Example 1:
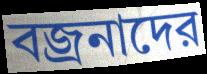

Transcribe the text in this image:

বজ্রনাদের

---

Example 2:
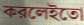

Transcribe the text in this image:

করলেইতো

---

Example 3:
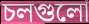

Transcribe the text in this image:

চলগুলো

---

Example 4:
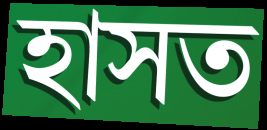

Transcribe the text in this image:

হাসত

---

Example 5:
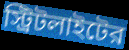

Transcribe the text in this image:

স্ট্রিটলাইটের